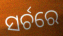
ସର୍ଚରେ